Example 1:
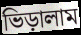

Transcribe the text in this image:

ভিড়ালাম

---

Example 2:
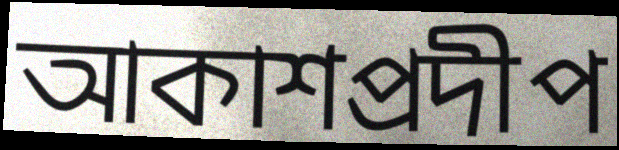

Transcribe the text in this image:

আকাশপ্রদীপ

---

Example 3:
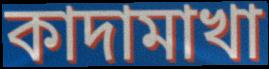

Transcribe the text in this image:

কাদামাখা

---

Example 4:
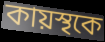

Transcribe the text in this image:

কায়স্থকে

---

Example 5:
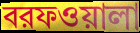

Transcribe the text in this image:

বরফওয়ালা